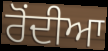
ਰੋਂਦੀਆ